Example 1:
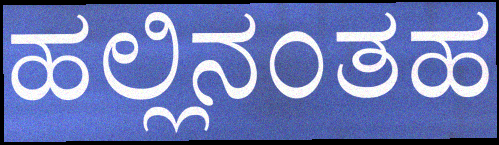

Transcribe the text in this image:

ಹಲ್ಲಿನಂತಹ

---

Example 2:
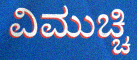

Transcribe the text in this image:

ವಿಮುಚ್ಚಿ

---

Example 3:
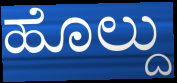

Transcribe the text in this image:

ಹೊಲ್ದು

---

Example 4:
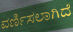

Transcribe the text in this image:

ವರ್ಣಿಸಲಾಗಿದೆ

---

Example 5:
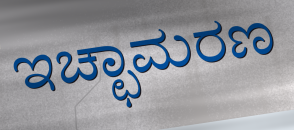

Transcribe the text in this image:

ಇಚ್ಛಾಮರಣ